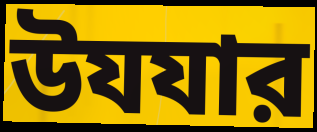
উযযার